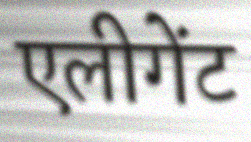
एलीगेंट